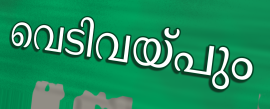
വെടിവയ്പും